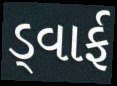
ડ્વાર્ફ